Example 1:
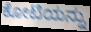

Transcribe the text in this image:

ಕೋಟಿಯನ್ನು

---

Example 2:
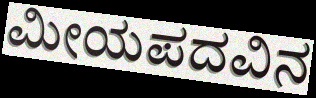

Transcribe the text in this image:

ಮೀಯಪದವಿನ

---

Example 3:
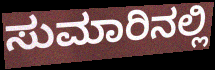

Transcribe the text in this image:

ಸುಮಾರಿನಲ್ಲಿ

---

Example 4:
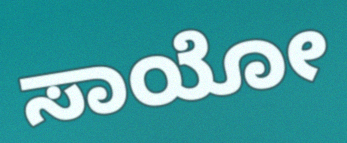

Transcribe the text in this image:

ಸಾಯೋ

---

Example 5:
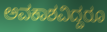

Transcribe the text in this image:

ಅವಕಾಶವಿದ್ದರೂ